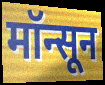
मॉन्सून